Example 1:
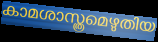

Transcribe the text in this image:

കാമശാസ്ത്രമെഴുതിയ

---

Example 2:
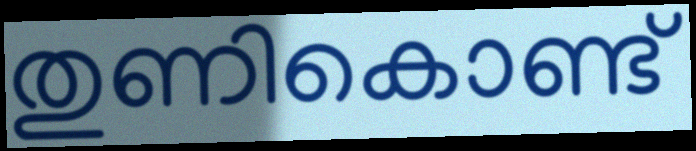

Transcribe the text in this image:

തുണികൊണ്ട്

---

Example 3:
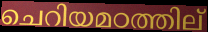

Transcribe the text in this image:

ചെറിയമഠത്തില്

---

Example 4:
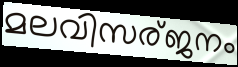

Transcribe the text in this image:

മലവിസര്ജനം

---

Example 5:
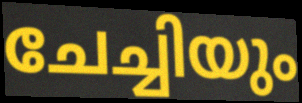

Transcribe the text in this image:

ചേച്ചിയും